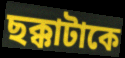
ছক্কাটাকে